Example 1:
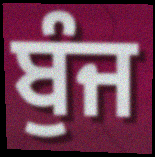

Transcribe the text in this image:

ਬੁੰਜ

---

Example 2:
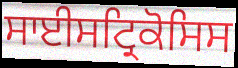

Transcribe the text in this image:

ਸਾਈਸਟ੍ਰਿਕੋਸਿਸ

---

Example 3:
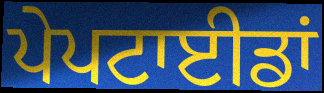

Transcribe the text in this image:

ਪੇਪਟਾਈਡਾਂ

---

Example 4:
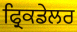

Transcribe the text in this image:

ਫ੍ਰਿਕਡੇਲਰ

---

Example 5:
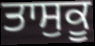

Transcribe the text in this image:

ਤਾਸੁਕੂ